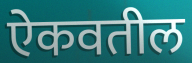
ऐकवतील